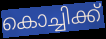
കൊച്ചിക്ക്